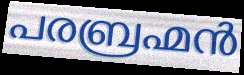
പരബ്രഹ്മൻ